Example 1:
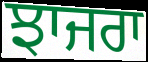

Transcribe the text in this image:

ਝਾਜਰਾ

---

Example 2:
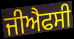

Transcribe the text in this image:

ਜੀਐਫਸੀ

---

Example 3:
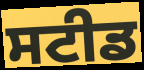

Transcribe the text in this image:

ਸਟੀਡ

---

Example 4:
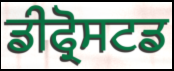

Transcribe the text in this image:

ਡੀਫ੍ਰੋਸਟਡ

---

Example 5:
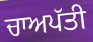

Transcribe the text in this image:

ਚਾਅਪੱਤੀ